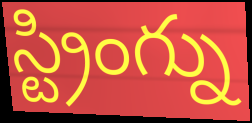
స్ట్రింగ్ను